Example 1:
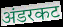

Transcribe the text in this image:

अंडरकट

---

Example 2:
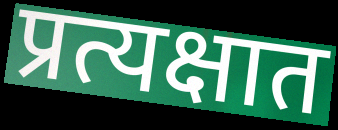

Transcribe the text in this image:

प्रत्यक्षात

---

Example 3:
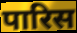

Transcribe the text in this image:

पारिस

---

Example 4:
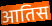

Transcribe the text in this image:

आतिस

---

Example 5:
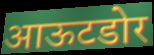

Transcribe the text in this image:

आऊटडोर